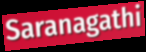
Saranagathi